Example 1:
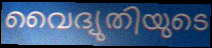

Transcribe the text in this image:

വൈദ്യുതിയുടെ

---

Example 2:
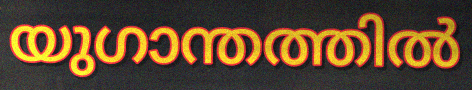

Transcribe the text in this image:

യുഗാന്തത്തിൽ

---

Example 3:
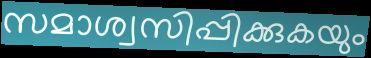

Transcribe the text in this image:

സമാശ്വസിപ്പിക്കുകയും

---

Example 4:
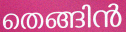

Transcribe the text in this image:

തെങ്ങിൻ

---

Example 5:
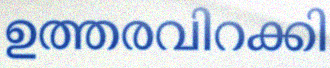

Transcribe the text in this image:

ഉത്തരവിറക്കി